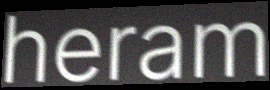
heram